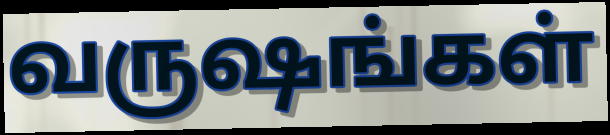
வருஷங்கள்